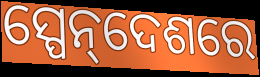
ସ୍ପେନ୍‌ଦେଶରେ